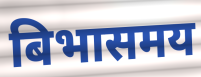
बिभासमय